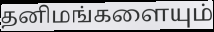
தனிமங்களையும்